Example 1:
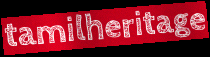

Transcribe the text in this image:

tamilheritage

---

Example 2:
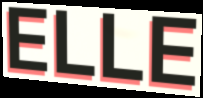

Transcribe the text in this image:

ELLE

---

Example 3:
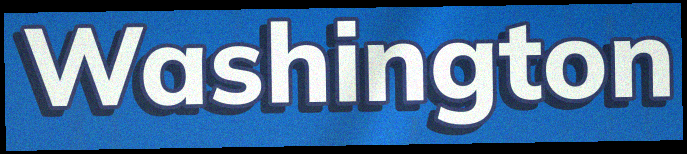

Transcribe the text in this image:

Washington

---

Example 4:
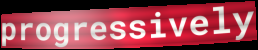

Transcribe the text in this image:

progressively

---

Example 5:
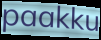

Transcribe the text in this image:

paakku